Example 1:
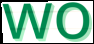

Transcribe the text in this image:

wo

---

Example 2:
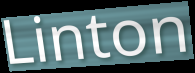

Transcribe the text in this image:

Linton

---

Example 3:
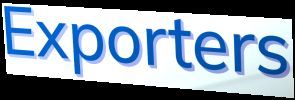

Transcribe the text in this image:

Exporters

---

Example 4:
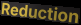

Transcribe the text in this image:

Reduction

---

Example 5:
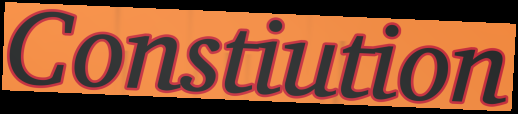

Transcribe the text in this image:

Constiution